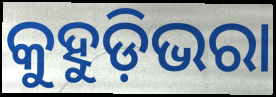
କୁହୁଡ଼ିଭରା